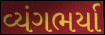
વ્યંગભર્યા